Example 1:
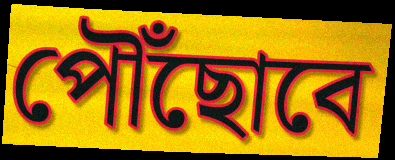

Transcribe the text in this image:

পৌঁছোবে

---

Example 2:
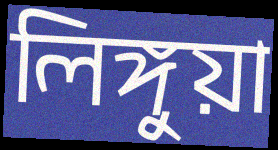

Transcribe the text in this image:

লিঙ্গুয়া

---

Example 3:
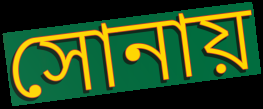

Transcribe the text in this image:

সোনায়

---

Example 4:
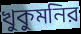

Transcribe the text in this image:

খুকুমনির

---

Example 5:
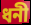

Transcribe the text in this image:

ধনী